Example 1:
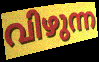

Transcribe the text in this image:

വിഴുന്ന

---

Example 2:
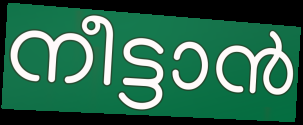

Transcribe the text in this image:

നീട്ടാൻ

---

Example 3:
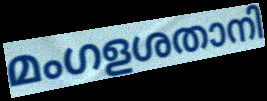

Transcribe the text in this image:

മംഗളശതാനി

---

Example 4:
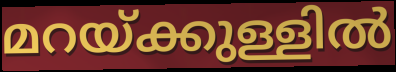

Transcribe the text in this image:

മറയ്ക്കുള്ളിൽ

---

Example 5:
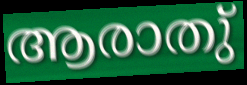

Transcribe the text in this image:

ആരാതു്